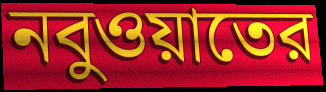
নবুওয়াতের